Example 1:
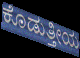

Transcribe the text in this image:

ಕೊಡುತ್ತೀಯ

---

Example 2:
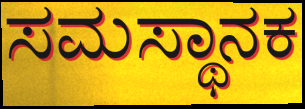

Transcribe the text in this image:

ಸಮಸ್ಥಾನಕ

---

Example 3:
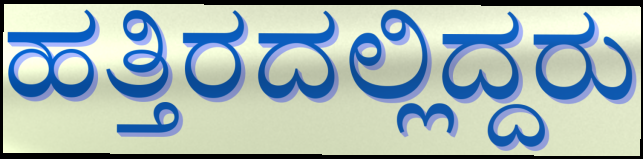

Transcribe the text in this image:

ಹತ್ತಿರದಲ್ಲಿದ್ದರು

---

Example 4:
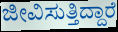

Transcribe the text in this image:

ಜೀವಿಸುತ್ತಿದ್ದಾರೆ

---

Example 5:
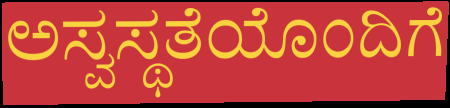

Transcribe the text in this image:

ಅಸ್ವಸ್ಥತೆಯೊಂದಿಗೆ